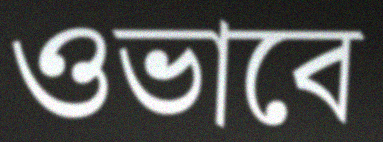
ওভাবে